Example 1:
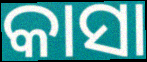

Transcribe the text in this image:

କାସା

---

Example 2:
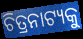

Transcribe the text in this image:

ଚିତ୍ରନାଟ୍ୟକୁ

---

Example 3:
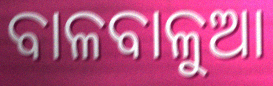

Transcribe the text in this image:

ବାଳବାଳୁଆ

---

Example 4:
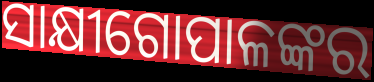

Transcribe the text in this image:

ସାକ୍ଷୀଗୋପାଳଙ୍କର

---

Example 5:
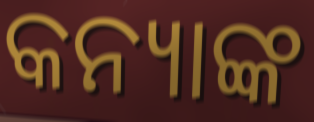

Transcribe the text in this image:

କନ୍ୟାଙ୍କ